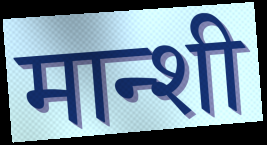
मान्शी